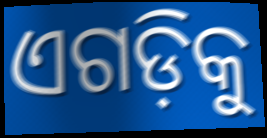
ଏଗଡ଼ିକୁ